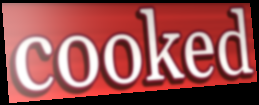
cooked